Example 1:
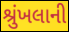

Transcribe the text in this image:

શ્રુંખલાની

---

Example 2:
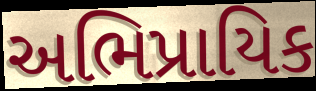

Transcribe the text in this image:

અભિપ્રાયિક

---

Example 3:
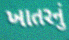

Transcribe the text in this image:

ખાતરનું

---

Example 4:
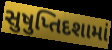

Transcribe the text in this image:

સુષુપ્તિદશામાં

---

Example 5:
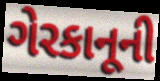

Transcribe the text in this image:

ગેરકાનૂની